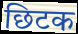
छिटक